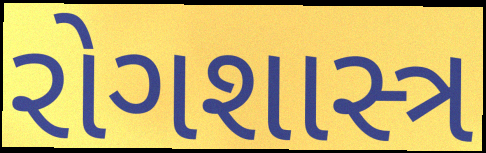
રોગશાસ્ત્ર